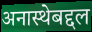
अनास्थेबद्दल